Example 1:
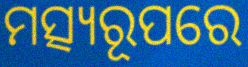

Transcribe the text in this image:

ମତ୍ସ୍ୟରୂପରେ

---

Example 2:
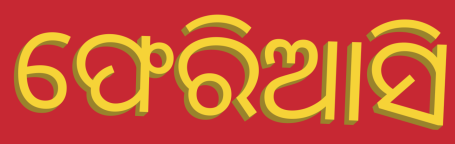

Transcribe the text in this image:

ଫେରିଆସି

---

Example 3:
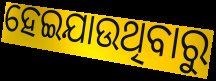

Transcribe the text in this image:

ହେଇଯାଉଥିବାରୁ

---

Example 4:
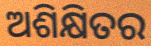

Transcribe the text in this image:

ଅଶିକ୍ଷିତର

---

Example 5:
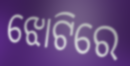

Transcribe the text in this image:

ଝୋଟିରେ